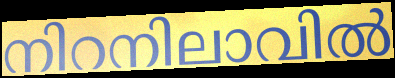
നിറനിലാവിൽ